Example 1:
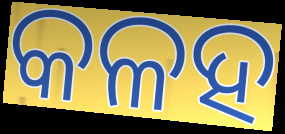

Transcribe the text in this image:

କଳହ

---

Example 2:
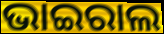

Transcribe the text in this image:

ଭାଇରାଲ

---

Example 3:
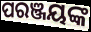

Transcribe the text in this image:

ପରଞ୍ଜୟଙ୍କ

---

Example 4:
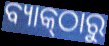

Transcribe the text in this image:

ବ୍ୟାକ୍‌ଠାରୁ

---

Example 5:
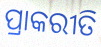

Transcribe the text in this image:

ପ୍ରାକରୀତି